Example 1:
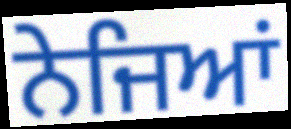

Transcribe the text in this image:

ਨੇਜਿਆਂ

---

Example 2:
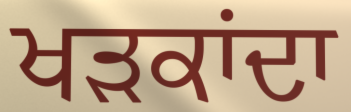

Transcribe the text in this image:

ਖੜਕਾਂਦਾ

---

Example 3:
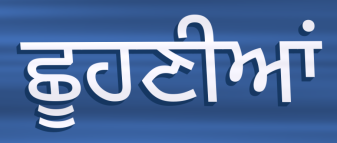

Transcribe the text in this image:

ਛੂਹਣੀਆਂ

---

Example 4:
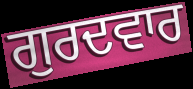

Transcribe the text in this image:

ਗੁਰਦਵਾਰ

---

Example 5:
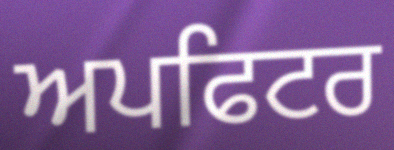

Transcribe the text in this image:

ਅਪਫਿਟਰ